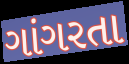
ગાંગરતા